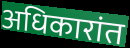
अधिकारांत